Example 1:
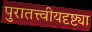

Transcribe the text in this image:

पुरातत्त्वीयदृष्ट्या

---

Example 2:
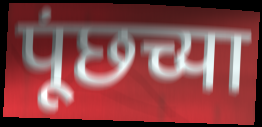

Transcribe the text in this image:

पूंछच्या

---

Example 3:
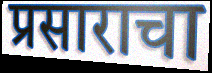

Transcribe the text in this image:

प्रसाराचा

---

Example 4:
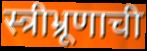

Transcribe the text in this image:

स्त्रीभ्रूणाची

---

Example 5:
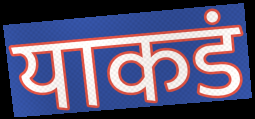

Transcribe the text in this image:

याकडं